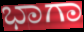
ಭಾಗಾ